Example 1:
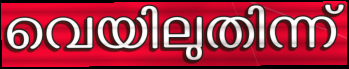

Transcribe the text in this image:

വെയിലുതിന്ന്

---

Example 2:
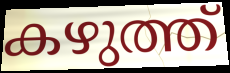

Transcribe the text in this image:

കഴുത്ത്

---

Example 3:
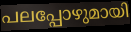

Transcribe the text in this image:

പലപ്പോഴുമായി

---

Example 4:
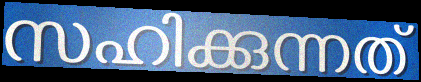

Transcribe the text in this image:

സഹിക്കുന്നത്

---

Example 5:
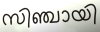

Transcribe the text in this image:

സിഞ്ചായി